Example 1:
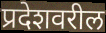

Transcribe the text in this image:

प्रदेशवरील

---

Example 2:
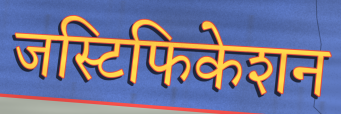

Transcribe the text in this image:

जस्टिफिकेशन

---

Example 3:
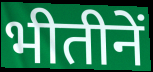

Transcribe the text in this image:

भीतीनें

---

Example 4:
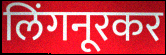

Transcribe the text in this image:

लिंगनूरकर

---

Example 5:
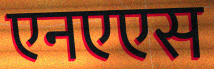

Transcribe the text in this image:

एनएएस